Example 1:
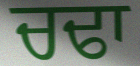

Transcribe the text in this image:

ਚਢਾ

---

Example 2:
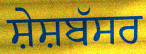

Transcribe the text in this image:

ਸ਼ੇਸ਼ਬੱਸਰ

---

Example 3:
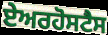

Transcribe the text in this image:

ਏਅਰਹੋਸਟੈਸ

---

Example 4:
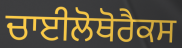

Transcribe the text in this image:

ਚਾਈਲੋਥੋਰੈਕਸ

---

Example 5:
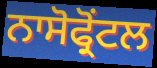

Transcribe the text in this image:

ਨਾਸੋਫ੍ਰੋਂਟਲ